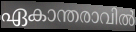
ഏകാന്തരാവിൽ